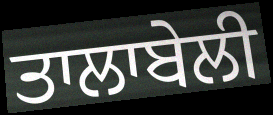
ਤਾਲਾਬੇਲੀ